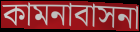
কামনাবাসনা